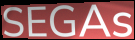
SEGAs